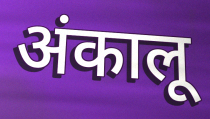
अंकालू